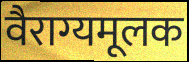
वैराग्यमूलक